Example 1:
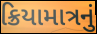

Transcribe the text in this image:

ક્રિયામાત્રનું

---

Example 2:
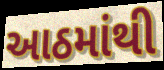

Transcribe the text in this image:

આઠમાંથી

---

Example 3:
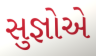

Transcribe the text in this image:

સુજ્ઞોએ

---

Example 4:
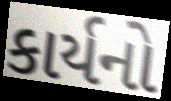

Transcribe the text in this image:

કાર્યનો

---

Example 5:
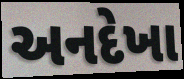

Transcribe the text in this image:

અનદેખા